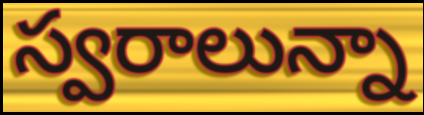
స్వరాలున్నా